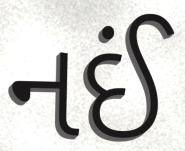
નઈં